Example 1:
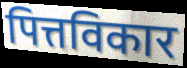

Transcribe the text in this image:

पित्तविकार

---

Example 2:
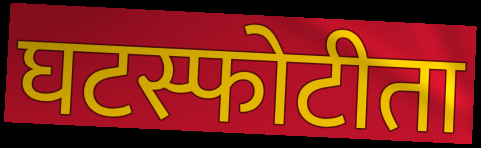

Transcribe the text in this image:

घटस्फोटीता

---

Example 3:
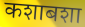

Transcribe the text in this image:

कशाबशा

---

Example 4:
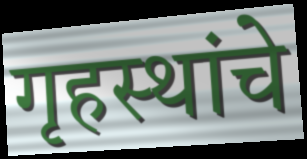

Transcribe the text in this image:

गृहस्थांचे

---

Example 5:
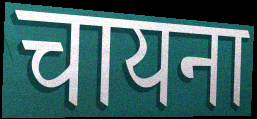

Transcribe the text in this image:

चायना